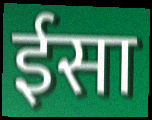
ईसा